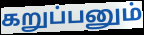
கறுப்பனும்